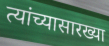
त्यांच्यासारख्या